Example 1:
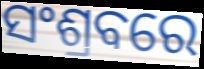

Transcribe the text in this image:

ସଂଶ୍ରବରେ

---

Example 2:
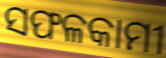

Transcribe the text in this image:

ସଫଳକାମୀ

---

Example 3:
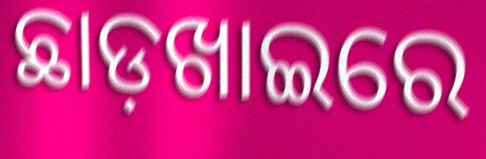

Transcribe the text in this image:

ଛାଡ଼ଖାଇରେ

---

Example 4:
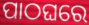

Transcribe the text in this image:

ପାଠଘରେ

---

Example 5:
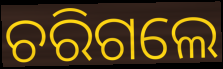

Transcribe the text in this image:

ଚରିଗଲେ